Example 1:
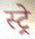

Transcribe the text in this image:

स्ट्रे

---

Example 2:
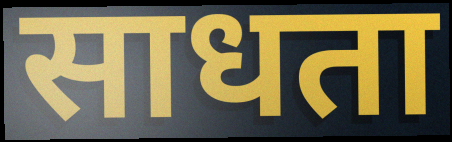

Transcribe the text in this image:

साधता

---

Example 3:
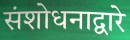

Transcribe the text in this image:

संशोधनाद्वारे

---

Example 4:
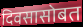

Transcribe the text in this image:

दिवसासोबत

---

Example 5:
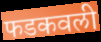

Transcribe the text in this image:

फडकवली